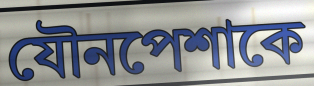
যৌনপেশাকে